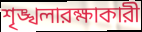
শৃঙ্খলারক্ষাকারী